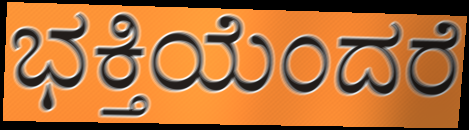
ಭಕ್ತಿಯೆಂದರೆ